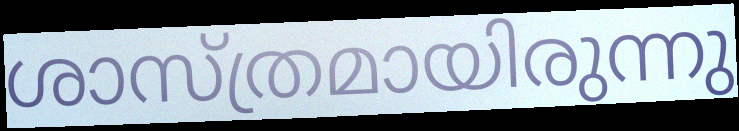
ശാസ്ത്രമായിരുന്നു